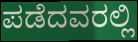
ಪಡೆದವರಲ್ಲಿ